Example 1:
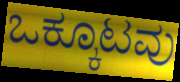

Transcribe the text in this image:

ಒಕ್ಕೂಟವು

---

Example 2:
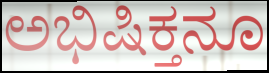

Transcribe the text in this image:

ಅಭಿಷಿಕ್ತನೂ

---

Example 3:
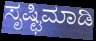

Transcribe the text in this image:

ಸೃಷ್ಟಿಮಾಡಿ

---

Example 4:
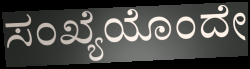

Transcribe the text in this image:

ಸಂಖ್ಯೆಯೊಂದೇ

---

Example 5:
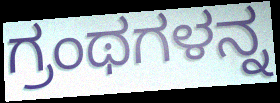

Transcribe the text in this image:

ಗ್ರಂಥಗಳನ್ನ